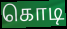
கொடி